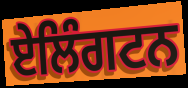
ਏਲਿੰਗਟਨ